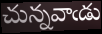
చున్నవాఁడు